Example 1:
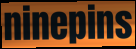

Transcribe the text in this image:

ninepins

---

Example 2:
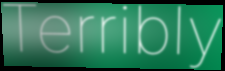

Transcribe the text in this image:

Terribly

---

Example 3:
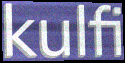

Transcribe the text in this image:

kulfi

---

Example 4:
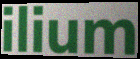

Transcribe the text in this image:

ilium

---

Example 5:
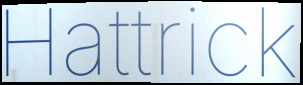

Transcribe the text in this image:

Hattrick